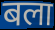
बला